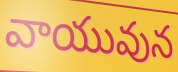
వాయువున